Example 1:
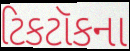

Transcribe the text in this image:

ટિકટૉકના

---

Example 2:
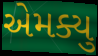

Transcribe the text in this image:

એમક્યુ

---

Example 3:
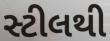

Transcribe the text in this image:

સ્ટીલથી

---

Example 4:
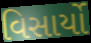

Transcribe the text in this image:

વિસાર્યો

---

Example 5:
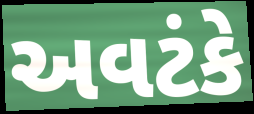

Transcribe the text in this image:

અવટંકે